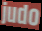
judo